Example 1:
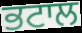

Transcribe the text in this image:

ਭਟਾਲ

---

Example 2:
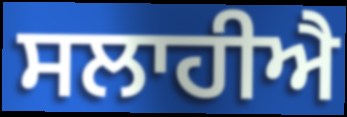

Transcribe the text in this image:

ਸਲਾਹੀਐ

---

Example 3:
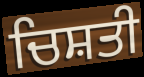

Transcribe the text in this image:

ਚਿਸ਼ਤੀ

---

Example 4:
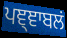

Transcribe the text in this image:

ਪਞ੍ਞਾਬਲਂ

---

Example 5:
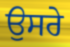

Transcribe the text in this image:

ਉਸਰੇ